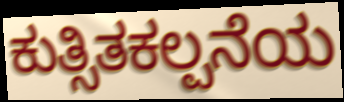
ಕುತ್ಸಿತಕಲ್ಪನೆಯ